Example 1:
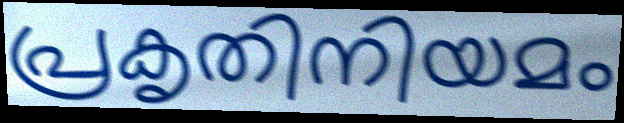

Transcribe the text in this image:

പ്രകൃതിനിയമം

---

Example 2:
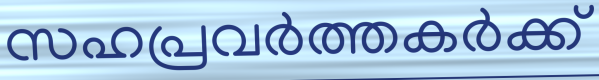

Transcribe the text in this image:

സഹപ്രവർത്തകർക്ക്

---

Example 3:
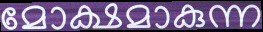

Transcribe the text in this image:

മോക്ഷമാകുന്ന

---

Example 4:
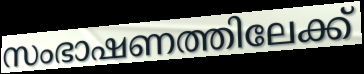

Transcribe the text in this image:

സംഭാഷണത്തിലേക്ക്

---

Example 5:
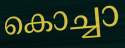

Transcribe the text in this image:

കൊച്ചാ